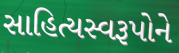
સાહિત્યસ્વરૂપોને